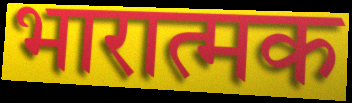
भारात्मक